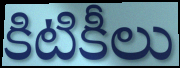
కిటికీలు